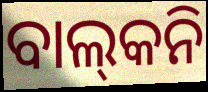
ବାଲ୍‍କନି